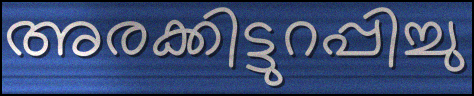
അരക്കിട്ടുറപ്പിച്ചു